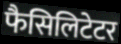
फैसिलिटेटर